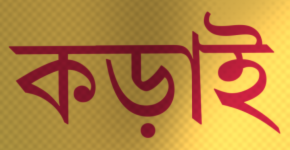
কড়াই